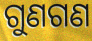
ଗୁଣଗଣ